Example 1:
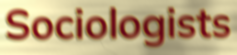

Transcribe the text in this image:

Sociologists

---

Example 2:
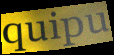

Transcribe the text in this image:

quipu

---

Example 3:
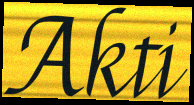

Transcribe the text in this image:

Akti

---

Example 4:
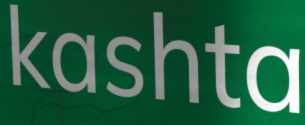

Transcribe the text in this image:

kashta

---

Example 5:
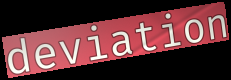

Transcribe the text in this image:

deviation